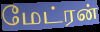
மேட்ரன்